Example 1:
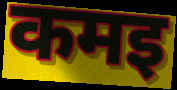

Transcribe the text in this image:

कमइ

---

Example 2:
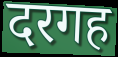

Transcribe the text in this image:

दरगह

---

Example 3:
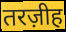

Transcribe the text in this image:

तरज़ीह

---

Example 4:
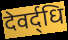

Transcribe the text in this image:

देवर्द्धि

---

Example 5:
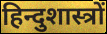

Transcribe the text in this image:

हिन्दुशास्त्रों